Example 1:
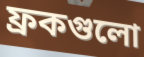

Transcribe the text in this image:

ফ্রকগুলো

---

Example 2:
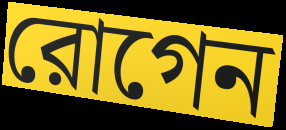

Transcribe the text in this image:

রোগেন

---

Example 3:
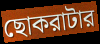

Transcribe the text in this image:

ছোকরাটার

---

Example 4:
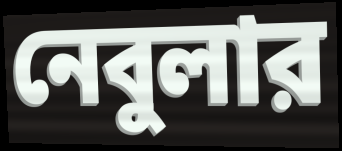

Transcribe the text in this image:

নেবুলার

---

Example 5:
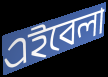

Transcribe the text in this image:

এইবেলা